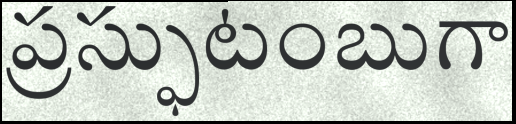
ప్రస్ఫుటంబుగా